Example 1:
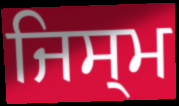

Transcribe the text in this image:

ਜਿਸ੍ਮ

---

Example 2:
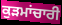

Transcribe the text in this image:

ਕੁੜਮਾਂਚਾਰੀ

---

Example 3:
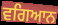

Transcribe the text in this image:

ਵਗਿਆਨ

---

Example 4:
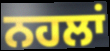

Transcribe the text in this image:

ਨਹਲਾਂ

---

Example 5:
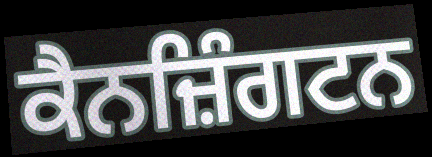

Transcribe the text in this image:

ਕੈਨਜ਼ਿੰਗਟਨ